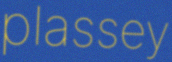
plassey